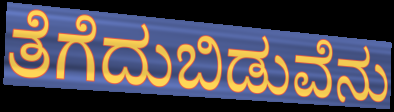
ತೆಗೆದುಬಿಡುವೆನು